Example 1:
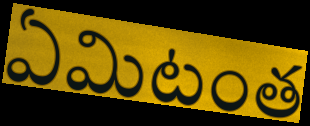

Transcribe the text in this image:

ఏమిటంత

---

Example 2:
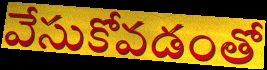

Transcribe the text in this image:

వేసుకోవడంతో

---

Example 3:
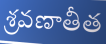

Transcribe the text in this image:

శ్రవణాతీత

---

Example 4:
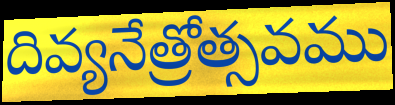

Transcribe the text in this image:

దివ్యనేత్రోత్సవము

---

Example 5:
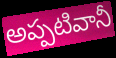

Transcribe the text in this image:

అప్పటివానీ